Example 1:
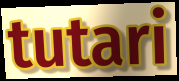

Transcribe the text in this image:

tutari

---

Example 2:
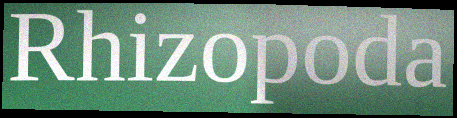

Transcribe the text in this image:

Rhizopoda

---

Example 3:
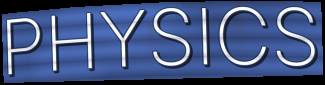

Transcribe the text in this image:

PHYSICS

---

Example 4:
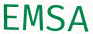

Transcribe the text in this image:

EMSA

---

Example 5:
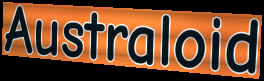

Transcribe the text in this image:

Australoid